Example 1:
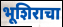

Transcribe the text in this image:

भूशिराचा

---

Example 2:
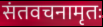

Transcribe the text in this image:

संतवचनामृतः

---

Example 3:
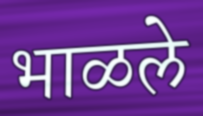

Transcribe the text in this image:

भाळले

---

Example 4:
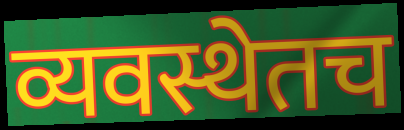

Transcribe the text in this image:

व्यवस्थेतच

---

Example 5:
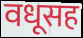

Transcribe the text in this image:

वधूसह